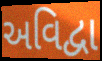
અવિદ્વા